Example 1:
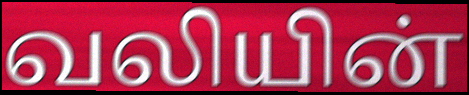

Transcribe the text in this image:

வலியின்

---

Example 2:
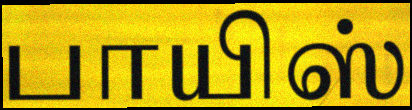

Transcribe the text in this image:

பாயிஸ்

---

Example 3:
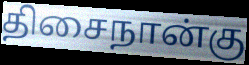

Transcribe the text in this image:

திசைநான்கு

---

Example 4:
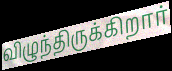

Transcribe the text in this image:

விழுந்திருக்கிறார்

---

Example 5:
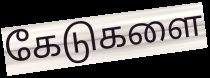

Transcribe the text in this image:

கேடுகளை